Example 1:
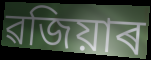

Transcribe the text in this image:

ৱজিয়াৰ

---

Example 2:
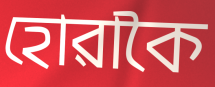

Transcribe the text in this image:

হোৱাকৈ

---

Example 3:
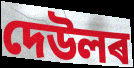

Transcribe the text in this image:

দেউলৰ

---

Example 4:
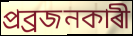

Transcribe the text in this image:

প্ৰব্ৰজনকাৰী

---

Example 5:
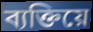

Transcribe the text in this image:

ব্যক্তিয়ে